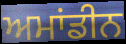
ਅਮਾਂਡੀਨ